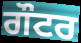
ਗੌਟਰ